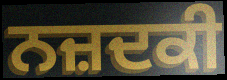
ਨਜ਼ਦਕੀ